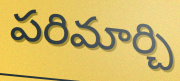
పరిమార్చి